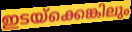
ഇടയ്ക്കെങ്കിലും